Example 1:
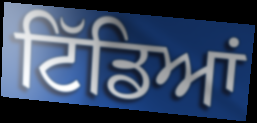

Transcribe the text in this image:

ਟਿੱਡਿਆਂ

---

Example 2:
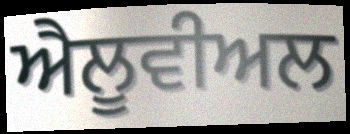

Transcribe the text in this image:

ਐਲੂਵੀਅਲ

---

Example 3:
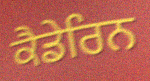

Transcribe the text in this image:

ਕੈਡੇਰਿਨ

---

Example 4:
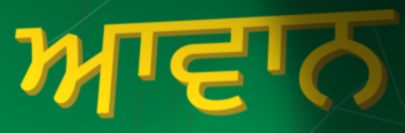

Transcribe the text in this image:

ਆਵਾਨ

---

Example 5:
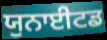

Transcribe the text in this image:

ਯੁਨਾਈਟਡ